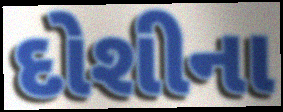
દોશીના